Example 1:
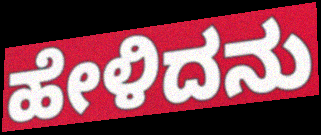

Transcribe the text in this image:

ಹೇಳಿದನು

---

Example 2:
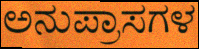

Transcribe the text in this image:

ಅನುಪ್ರಾಸಗಳ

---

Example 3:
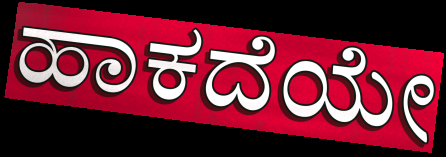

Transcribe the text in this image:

ಹಾಕದೆಯೇ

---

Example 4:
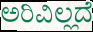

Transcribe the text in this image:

ಅರಿವಿಲ್ಲದೆ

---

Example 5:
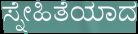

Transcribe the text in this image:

ಸ್ನೇಹಿತೆಯಾದ